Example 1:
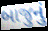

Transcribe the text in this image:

બાજુનું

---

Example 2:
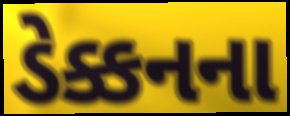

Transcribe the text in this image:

ડેક્કનના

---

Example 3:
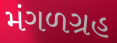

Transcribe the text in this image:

મંગળગ્રહ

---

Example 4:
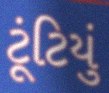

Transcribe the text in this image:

ટૂંટિયું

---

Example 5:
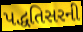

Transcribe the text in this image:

પદ્ધતિસરની